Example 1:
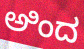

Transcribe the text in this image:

ಅಿಂದ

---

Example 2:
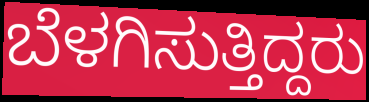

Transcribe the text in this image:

ಬೆಳಗಿಸುತ್ತಿದ್ದರು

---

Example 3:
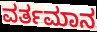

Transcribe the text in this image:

ವರ್ತಮಾನ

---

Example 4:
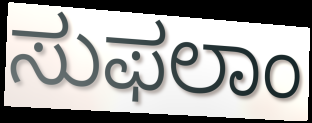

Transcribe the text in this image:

ಸುಫಲಾಂ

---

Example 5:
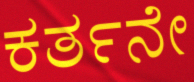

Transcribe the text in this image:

ಕರ್ತನೇ